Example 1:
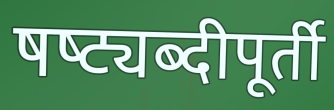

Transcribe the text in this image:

षष्ट्यब्दीपूर्ती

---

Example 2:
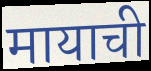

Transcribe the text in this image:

मायाची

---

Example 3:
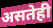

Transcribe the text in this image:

असतेही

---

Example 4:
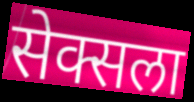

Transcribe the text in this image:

सेक्सला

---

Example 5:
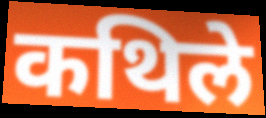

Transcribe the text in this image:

कथिले